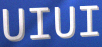
UIUI